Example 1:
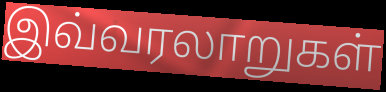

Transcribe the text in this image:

இவ்வரலாறுகள்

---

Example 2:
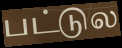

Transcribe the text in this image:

பட்டுல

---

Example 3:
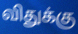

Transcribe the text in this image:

விதுக்கு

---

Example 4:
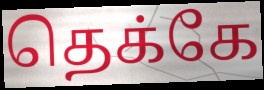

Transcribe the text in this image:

தெக்கே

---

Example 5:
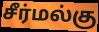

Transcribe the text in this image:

சீர்மல்கு